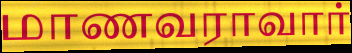
மாணவராவார்